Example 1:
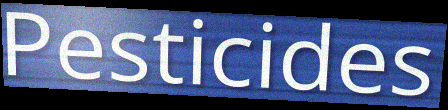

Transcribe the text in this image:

Pesticides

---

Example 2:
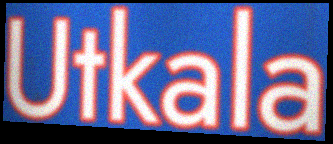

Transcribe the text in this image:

Utkala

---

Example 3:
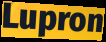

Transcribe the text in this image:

Lupron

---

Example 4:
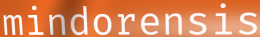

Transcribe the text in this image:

mindorensis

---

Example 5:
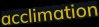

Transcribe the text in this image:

acclimation